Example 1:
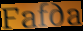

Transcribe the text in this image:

Fafda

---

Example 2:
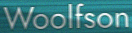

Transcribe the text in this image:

Woolfson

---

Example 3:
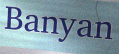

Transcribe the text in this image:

Banyan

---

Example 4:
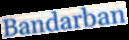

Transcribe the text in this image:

Bandarban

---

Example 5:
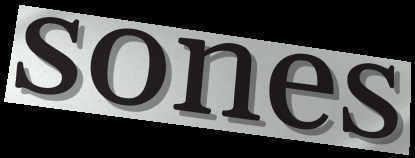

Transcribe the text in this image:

sones